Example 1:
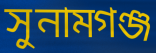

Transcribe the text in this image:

সুনামগঞ্জ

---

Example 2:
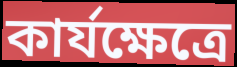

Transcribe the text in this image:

কার্যক্ষেত্রে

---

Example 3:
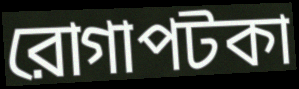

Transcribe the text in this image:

রোগাপটকা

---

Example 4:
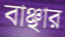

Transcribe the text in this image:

বাঞ্ছার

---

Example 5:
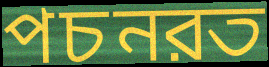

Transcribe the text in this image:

পচনরত